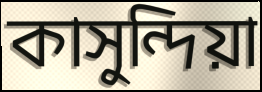
কাসুন্দিয়া